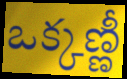
ఒక్కణ్ణీ